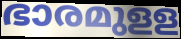
ഭാരമുളള